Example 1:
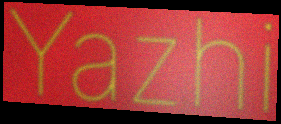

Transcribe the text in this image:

Yazhi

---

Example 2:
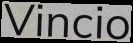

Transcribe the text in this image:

Vincio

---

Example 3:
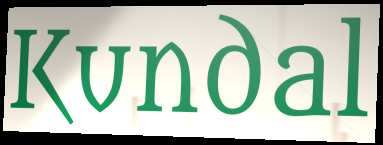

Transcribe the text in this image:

Kundal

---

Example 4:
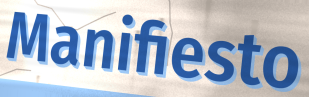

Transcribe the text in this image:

Manifiesto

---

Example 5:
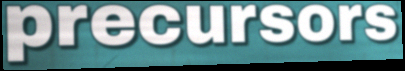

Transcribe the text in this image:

precursors